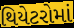
થિયેટરોમાં